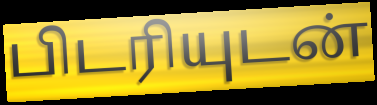
பிடரியுடன்